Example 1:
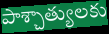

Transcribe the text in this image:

పాశ్చాత్యులకు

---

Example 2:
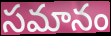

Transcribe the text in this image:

సమానం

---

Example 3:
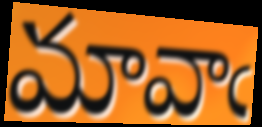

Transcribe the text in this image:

మావాఁ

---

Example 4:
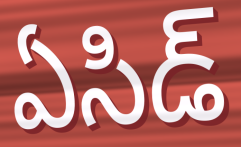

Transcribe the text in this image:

ఏసిడ్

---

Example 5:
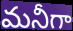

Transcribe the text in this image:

మనీగా